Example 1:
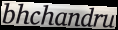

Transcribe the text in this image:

bhchandru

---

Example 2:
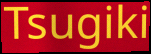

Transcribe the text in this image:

Tsugiki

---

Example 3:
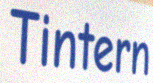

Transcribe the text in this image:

Tintern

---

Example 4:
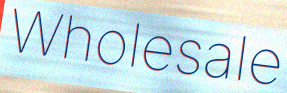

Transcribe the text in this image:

Wholesale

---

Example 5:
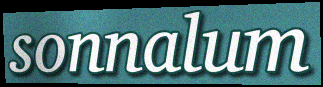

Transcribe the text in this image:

sonnalum